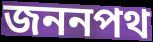
জননপথ